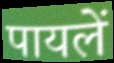
पायलें